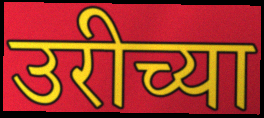
उरीच्या